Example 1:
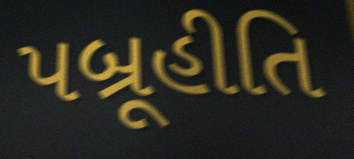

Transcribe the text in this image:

પબ્રૂહીતિ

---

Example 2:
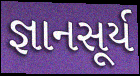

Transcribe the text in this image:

જ્ઞાનસૂર્ય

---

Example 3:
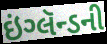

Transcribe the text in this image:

ઇંગ્લૅન્ડની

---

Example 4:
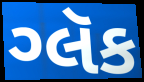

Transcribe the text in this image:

ગ્લૅક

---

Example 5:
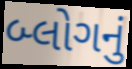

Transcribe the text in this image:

બ્લોગનું